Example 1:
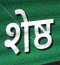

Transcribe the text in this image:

शेष्ठ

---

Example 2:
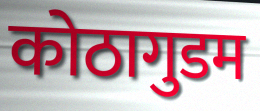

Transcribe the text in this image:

कोठागुडम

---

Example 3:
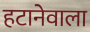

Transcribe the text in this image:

हटानेवाला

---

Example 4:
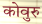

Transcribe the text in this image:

कोवुरु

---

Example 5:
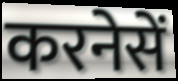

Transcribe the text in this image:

करनेसें